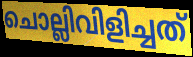
ചൊല്ലിവിളിച്ചത്